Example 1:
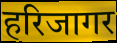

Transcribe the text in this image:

हरिजागर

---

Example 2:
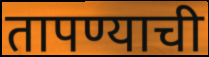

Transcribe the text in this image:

तापण्याची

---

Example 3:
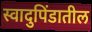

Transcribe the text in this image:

स्वादुपिंडातील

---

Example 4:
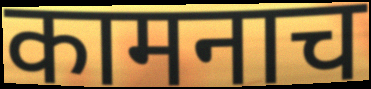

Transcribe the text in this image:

कामनाच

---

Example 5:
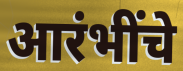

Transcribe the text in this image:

आरंभींचे